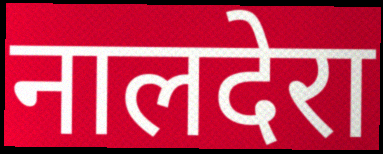
नालदेरा